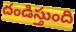
దండిస్తుంది